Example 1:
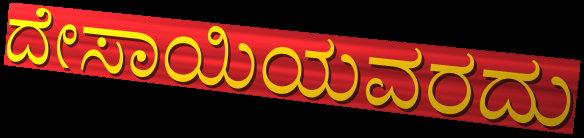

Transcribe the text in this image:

ದೇಸಾಯಿಯವರದು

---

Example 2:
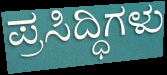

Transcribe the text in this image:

ಪ್ರಸಿದ್ಧಿಗಳು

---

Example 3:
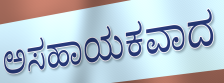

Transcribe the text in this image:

ಅಸಹಾಯಕವಾದ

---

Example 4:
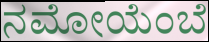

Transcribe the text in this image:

ನಮೋಯೆಂಬೆ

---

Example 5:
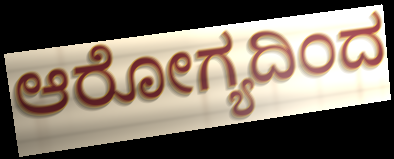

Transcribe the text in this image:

ಆರೋಗ್ಯದಿಂದ